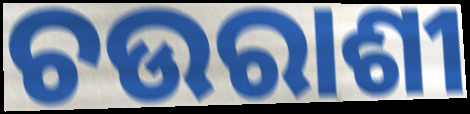
ଚଉରାଶୀ